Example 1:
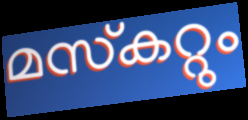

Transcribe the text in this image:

മസ്‌കറ്റും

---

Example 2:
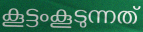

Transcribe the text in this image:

കൂട്ടംകൂടുന്നത്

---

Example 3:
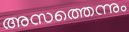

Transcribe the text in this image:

അസത്തെന്നും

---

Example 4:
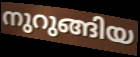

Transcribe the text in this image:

നുറുങ്ങിയ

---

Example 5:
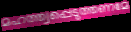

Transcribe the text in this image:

മഹത്ത്വപ്പെടുത്തണമേ